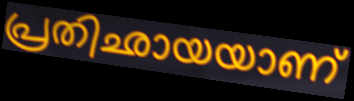
പ്രതിഛായയാണ്